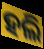
ହଲି